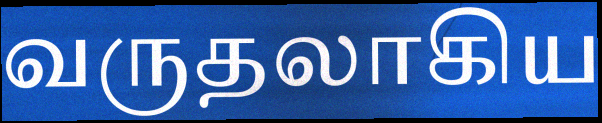
வருதலாகிய